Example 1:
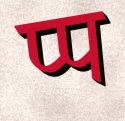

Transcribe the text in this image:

प्प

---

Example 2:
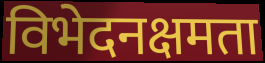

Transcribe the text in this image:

विभेदनक्षमता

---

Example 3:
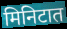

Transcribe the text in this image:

मिनिटात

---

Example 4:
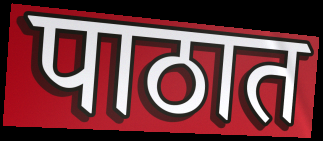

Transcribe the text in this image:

पाठात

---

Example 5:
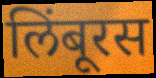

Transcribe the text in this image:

लिंबूरस